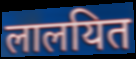
लालयित